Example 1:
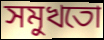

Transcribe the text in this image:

সমুখতো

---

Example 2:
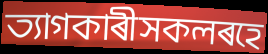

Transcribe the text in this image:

ত্যাগকাৰীসকলৰহে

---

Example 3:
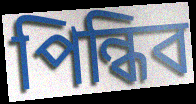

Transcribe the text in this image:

পিন্ধিব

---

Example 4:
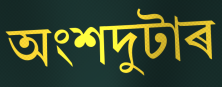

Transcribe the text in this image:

অংশদুটাৰ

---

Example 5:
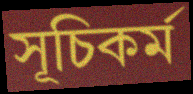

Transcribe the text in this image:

সূচিকৰ্ম